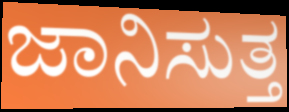
ಜಾನಿಸುತ್ತ